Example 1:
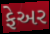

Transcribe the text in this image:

ફેઅર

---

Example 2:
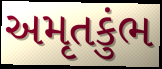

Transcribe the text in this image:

અમૃતકુંભ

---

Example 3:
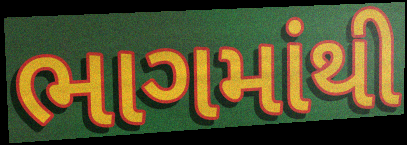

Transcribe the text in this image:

ભાગમાંથી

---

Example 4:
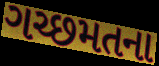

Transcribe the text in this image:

ગચ્છમતના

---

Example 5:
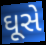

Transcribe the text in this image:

ઘૂસે